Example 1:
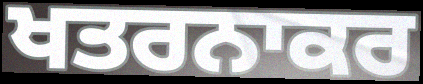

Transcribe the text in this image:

ਖਤਰਨਾਕਰ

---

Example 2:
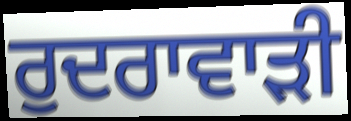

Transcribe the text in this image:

ਰੁਦਰਾਵਾੜੀ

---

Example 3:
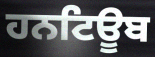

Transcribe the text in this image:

ਹਨਟਿਊਬ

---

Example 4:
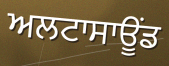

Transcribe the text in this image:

ਅਲਟਾਸਾਊਂਡ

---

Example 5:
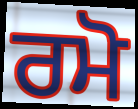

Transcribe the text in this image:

ਰਮੋ